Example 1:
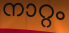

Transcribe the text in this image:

നാറ്റം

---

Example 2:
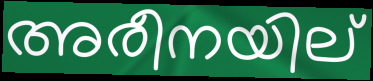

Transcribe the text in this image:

അരീനയില്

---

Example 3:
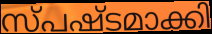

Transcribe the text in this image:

സ്പഷ്ടമാക്കി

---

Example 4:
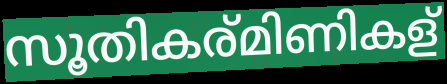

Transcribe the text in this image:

സൂതികര്മിണികള്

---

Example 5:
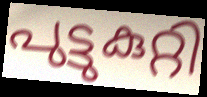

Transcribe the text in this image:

പുട്ടുകുറ്റി